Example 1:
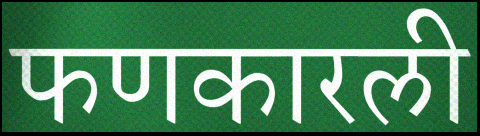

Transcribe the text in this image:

फणकारली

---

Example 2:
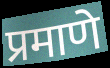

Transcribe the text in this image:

प्रमाणे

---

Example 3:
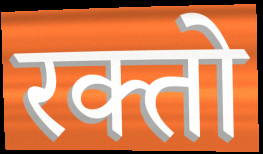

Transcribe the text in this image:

रक्तो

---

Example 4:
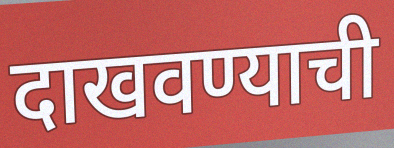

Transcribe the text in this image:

दाखवण्याची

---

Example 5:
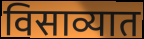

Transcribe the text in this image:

विसाव्यात